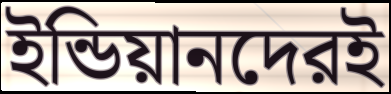
ইন্ডিয়ানদেরই